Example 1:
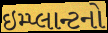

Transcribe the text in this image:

ઇમ્પ્લાન્ટનો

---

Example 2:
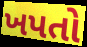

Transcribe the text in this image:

ખપતો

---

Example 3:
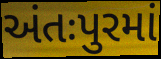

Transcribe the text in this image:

અંતઃપુરમાં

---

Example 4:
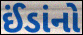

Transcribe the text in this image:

ઈંડાંનો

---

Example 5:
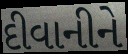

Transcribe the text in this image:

દીવાનીને